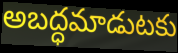
అబద్ధమాడుటకు